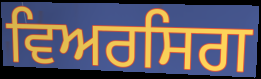
ਵਿਅਰਸਿਗ